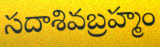
సదాశివబ్రహ్మం